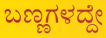
ಬಣ್ಣಗಳದ್ದೇ